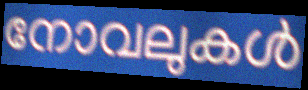
നോവലുകൾ